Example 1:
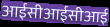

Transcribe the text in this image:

आईसीआईसीआई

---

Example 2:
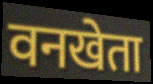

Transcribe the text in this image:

वनखेता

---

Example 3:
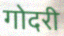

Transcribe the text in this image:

गोदरी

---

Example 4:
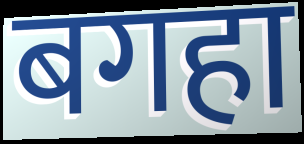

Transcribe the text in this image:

बगहा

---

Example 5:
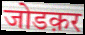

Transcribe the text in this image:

जोडक़र